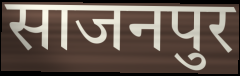
साजनपुर